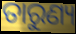
ତାରୁଣ୍ୟ